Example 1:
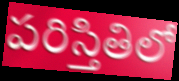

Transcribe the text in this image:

పరిస్తితిలో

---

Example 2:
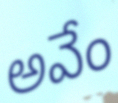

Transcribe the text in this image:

అవేం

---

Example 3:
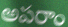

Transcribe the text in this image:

అపరాం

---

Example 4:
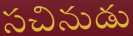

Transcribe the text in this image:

సచినుడు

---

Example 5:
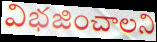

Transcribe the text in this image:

విభజించాలని